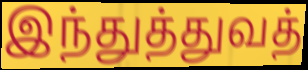
இந்துத்துவத்